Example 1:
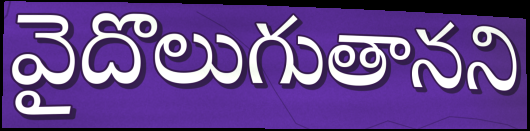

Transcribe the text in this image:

వైదొలుగుతానని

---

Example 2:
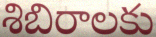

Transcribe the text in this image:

శిబిరాలకు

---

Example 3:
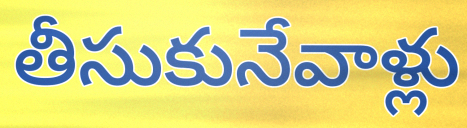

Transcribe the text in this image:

తీసుకునేవాళ్లు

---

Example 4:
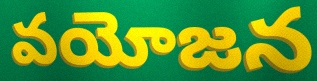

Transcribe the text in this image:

వయోజన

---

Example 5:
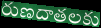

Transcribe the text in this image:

రుణదాతలకు